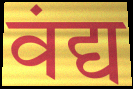
वंद्य